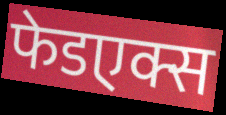
फेडएक्स